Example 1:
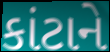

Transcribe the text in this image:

કાંટાને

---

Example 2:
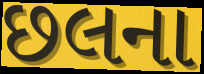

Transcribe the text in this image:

છલના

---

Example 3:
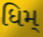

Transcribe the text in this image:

ધિમ્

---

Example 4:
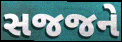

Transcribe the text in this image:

સજજને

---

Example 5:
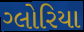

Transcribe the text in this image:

ગ્લોરિયા